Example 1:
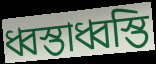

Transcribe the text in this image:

ধ্বস্তাধ্বস্তি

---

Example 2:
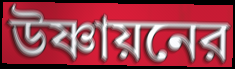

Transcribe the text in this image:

উষ্ণায়নের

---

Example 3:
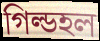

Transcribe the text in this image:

গিল্ডহল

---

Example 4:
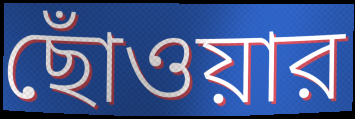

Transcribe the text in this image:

ছোঁওয়ার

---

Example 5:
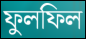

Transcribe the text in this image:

ফুলফিল